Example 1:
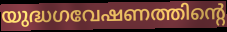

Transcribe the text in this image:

യുദ്ധഗവേഷണത്തിന്റെ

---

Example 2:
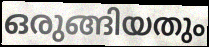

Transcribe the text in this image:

ഒരുങ്ങിയതും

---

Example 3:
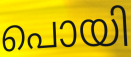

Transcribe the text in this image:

പൊയി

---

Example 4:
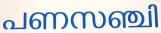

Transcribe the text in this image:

പണസഞ്ചി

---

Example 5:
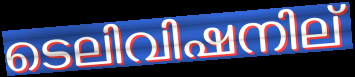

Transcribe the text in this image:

ടെലിവിഷനില്